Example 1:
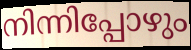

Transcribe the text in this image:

നിന്നിപ്പോഴും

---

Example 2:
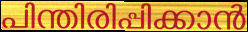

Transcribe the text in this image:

പിന്തിരിപ്പിക്കാൻ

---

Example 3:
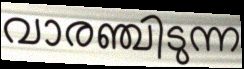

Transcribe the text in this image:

വാരഞ്ചിടുന്ന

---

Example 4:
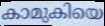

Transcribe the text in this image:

കാമുകിയെ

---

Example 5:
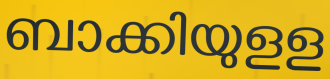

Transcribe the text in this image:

ബാക്കിയുളള